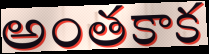
అంతకాక